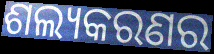
ଶଲ୍ୟକରଣର